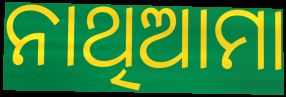
ନାଥିଆମା